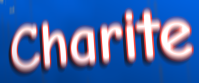
Charite